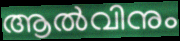
ആൽവിനും